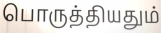
பொருத்தியதும்